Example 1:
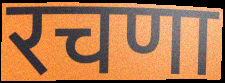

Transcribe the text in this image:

रचणा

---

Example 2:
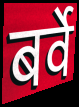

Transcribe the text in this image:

बर्वे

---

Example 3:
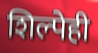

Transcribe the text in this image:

शिल्पेही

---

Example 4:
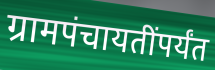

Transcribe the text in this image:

ग्रामपंचायतींपर्यंत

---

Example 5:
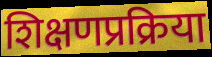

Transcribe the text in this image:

शिक्षणप्रक्रिया